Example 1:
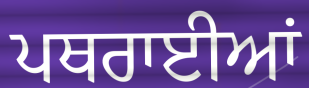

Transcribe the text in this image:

ਪਥਰਾਈਆਂ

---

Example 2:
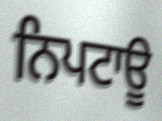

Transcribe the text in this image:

ਨਿਪਟਾਊ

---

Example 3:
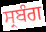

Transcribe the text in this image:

ਸ੍ਰਬੰਗ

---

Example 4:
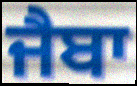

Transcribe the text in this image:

ਜੈਬਾ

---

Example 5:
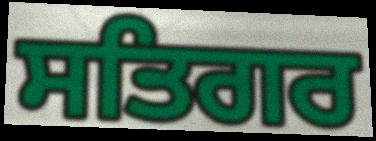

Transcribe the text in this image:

ਸਤਿਗਰ